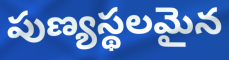
పుణ్యస్థలమైన